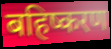
बहिष्करण